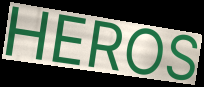
HEROS